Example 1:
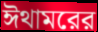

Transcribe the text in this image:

ঈথামরের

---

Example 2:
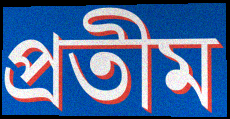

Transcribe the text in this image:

প্রতীম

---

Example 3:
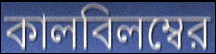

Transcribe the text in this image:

কালবিলম্বের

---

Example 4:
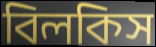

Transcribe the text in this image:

বিলকিস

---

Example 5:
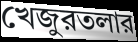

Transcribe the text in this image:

খেজুরতলার